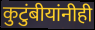
कुटुंबीयांनीही